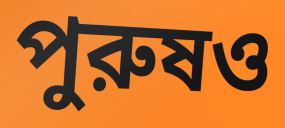
পুরুষও